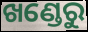
ଖଣ୍ଡେରୁ